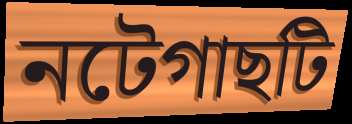
নটেগাছটি